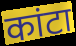
कांटा